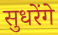
सुधरेंगे